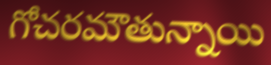
గోచరమౌతున్నాయి